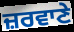
ਜ਼ਰਵਾਣੇ